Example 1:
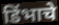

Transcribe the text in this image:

डिंभाचे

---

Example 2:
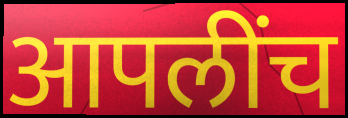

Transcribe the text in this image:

आपलींच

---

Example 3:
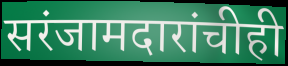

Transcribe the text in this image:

सरंजामदारांचीही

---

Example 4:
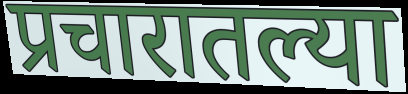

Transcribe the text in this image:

प्रचारातल्या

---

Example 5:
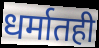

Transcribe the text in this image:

धर्मातही